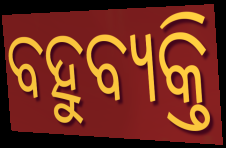
ବହୁବ୍ୟକ୍ତି